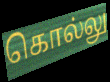
கொல்லு